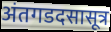
अंतगडदसासूत्र